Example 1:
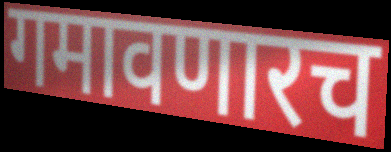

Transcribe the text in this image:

गमावणारच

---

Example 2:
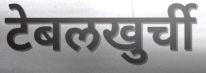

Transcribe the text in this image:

टेबलखुर्ची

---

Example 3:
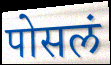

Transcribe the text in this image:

पोसलं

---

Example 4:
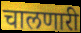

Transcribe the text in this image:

चालणारी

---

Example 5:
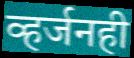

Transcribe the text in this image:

व्हर्जनही